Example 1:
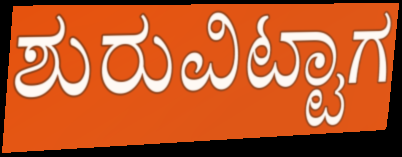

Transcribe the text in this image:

ಶುರುವಿಟ್ಟಾಗ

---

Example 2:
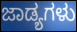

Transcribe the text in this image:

ಜಾಡ್ಯಗಳು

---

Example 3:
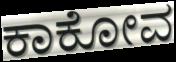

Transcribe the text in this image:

ಕಾಕೋವ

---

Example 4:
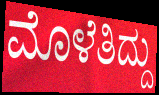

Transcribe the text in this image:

ಮೊಳೆತಿದ್ದು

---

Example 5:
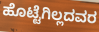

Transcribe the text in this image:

ಹೊಟ್ಟೆಗಿಲ್ಲದವರ